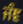
ਜੰਞ